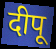
दीपू